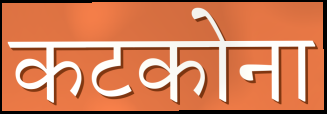
कटकोना